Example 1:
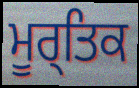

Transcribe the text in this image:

ਮੂਰ੍ਤਿਕ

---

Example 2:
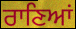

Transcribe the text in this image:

ਰਾਣਿਆਂ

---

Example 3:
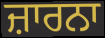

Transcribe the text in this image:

ਜ਼ਾਰਨਾ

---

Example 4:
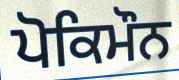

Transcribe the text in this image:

ਪੋਕਿਮੌਨ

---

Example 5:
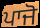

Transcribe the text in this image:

ਪਾਜੋ